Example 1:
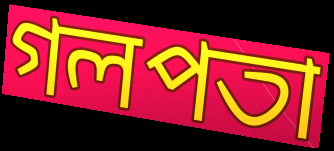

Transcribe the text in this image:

গলপতা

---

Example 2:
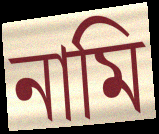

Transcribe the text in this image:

নামি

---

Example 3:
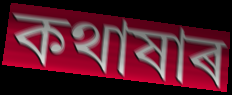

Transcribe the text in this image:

কথাষাৰ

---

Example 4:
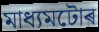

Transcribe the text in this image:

মাধ্যমটোৰ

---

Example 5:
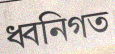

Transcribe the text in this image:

ধ্বনিগত